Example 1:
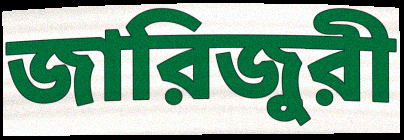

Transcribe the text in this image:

জারিজুরী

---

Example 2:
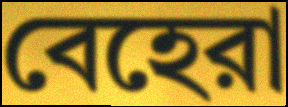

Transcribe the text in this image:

বেহেরা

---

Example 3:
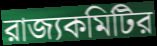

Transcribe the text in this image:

রাজ্যকমিটির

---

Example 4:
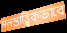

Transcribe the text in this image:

মনস্তাত্ত্বিকভাবে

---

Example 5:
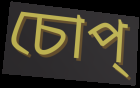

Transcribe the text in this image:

চোপ্